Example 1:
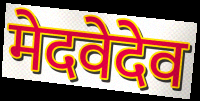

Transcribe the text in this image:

मेदवेदेव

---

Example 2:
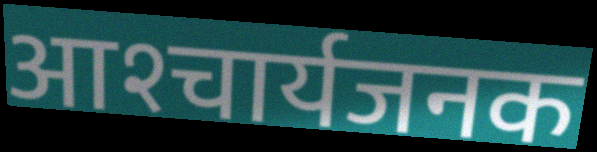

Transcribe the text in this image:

आश्चार्यजनक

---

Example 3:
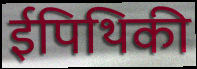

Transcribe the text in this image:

ईपिथिकी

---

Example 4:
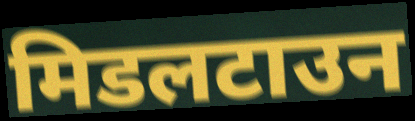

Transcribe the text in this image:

मिडलटाउन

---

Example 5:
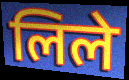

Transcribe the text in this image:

लिले